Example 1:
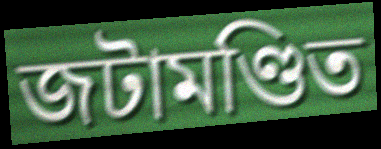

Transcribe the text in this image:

জটামণ্ডিত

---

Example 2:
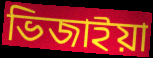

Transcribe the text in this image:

ভিজাইয়া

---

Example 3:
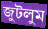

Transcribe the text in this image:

জুটলুম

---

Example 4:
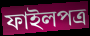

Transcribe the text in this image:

ফাইলপত্র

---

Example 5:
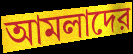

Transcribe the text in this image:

আমলাদের